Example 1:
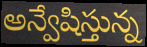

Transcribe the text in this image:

అన్వేషిస్తున్న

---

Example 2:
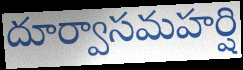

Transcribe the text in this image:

దూర్వాసమహర్షి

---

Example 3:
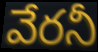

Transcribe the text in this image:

వేరనీ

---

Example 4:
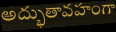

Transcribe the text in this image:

అద్భుతావహంగా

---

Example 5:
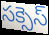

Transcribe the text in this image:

సక్సెస్